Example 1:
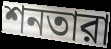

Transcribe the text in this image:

শনতারা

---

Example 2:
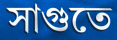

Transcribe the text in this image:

সাগুতে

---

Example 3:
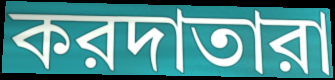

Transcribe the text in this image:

করদাতারা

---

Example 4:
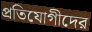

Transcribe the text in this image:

প্রতিযোগীদের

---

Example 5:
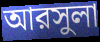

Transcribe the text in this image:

আরসুলা